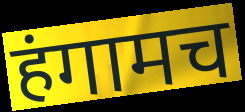
हंगामच